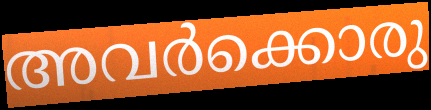
അവർക്കൊരു